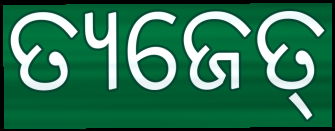
ତ୍ଯଜେତ୍